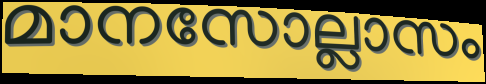
മാനസോല്ലാസം